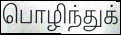
பொழிந்துக்